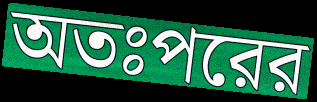
অতঃপরের